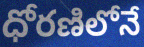
ధోరణిలోనే